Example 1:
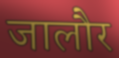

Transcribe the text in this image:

जालौर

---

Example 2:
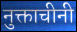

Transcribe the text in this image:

नुक्ताचीनी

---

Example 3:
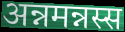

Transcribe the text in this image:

अन्नमन्नस्स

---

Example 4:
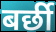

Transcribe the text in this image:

बर्छी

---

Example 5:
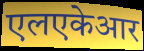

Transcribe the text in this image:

एलएकेआर